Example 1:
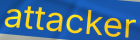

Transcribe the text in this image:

attacker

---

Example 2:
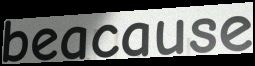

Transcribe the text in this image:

beacause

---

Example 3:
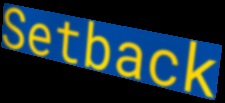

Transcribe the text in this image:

Setback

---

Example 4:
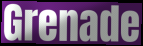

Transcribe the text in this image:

Grenade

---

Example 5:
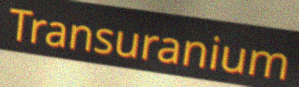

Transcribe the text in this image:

Transuranium